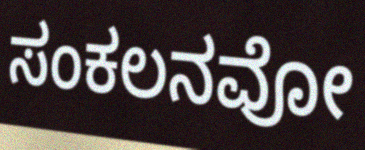
ಸಂಕಲನವೋ